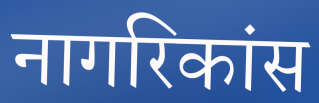
नागरिकांस